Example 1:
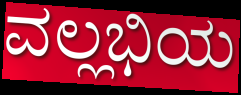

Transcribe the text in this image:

ವಲ್ಲಭಿಯ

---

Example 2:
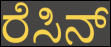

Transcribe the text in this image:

ರೆಸಿನ್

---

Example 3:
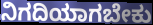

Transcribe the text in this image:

ನಿಗದಿಯಾಗಬೇಕು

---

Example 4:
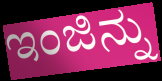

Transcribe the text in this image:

ಇಂಜಿನ್ನು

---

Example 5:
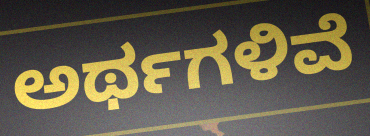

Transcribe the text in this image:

ಅರ್ಥಗಳಿವೆ